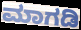
ಮಾಗಡಿ